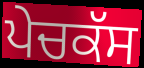
ਪੇਚਕੱਸ